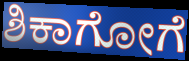
ಶಿಕಾಗೋಗೆ